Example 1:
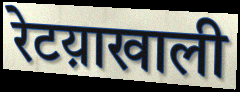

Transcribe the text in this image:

रेटय़ाखाली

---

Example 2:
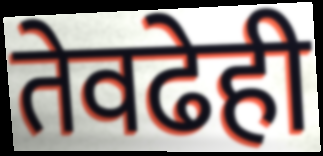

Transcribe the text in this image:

तेवढेही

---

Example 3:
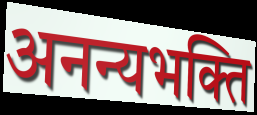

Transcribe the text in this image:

अनन्यभक्ति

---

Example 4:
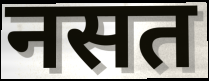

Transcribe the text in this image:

नसत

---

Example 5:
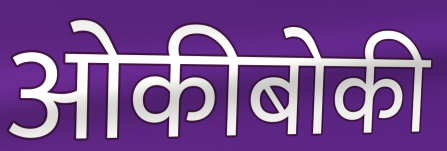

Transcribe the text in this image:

ओकीबोकी